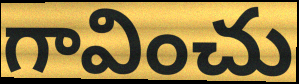
గావించు